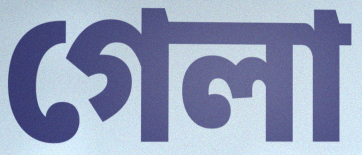
গেলা